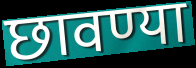
छावण्या